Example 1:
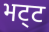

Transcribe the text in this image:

भट्‌ट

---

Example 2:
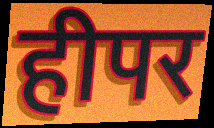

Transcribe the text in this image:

हीपर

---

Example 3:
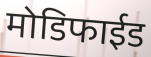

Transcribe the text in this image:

मोडिफाईड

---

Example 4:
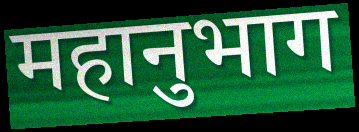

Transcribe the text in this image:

महानुभाग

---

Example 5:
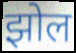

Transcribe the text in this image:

झोल